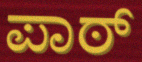
ಪಾಠ್